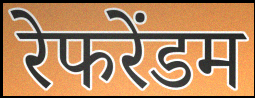
रेफरेंडम